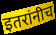
इतरांनीच